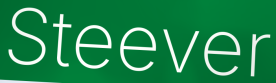
Steever